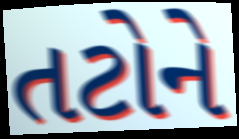
તટોને